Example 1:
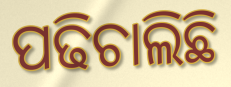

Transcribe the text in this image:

ପଢିଚାଲିଛି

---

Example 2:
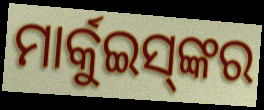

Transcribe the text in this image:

ମାର୍କୁଇସ୍‍ଙ୍କର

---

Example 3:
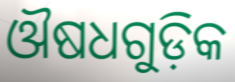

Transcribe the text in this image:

ଔଷଧଗୁଡ଼ିକ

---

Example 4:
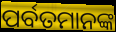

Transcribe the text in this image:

ପର୍ବତମାନଙ୍କ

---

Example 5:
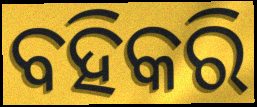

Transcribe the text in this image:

ବହିକରି